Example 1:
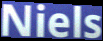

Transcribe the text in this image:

Niels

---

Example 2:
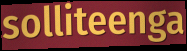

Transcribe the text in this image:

solliteenga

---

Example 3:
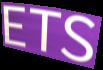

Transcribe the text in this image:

ETS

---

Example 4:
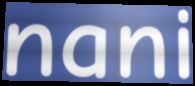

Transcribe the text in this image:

nani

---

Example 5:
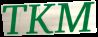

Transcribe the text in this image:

TKM